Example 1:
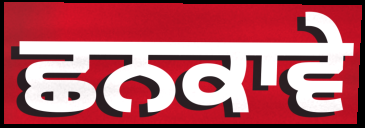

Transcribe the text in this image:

ਛਨਕਾਵੇ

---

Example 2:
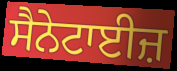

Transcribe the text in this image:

ਸੈਨੇਟਾਈਜ਼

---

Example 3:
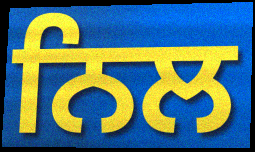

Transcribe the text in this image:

ਨਿਲ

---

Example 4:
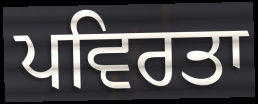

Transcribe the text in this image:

ਪਵਿਰਤਾ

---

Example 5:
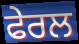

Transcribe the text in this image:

ਫੇਰਲ